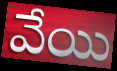
వేయి